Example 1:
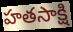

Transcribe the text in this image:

హతసాక్షి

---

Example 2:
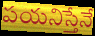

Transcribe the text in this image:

పయనిస్తేనే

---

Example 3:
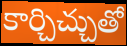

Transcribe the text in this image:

కార్చిచ్చుతో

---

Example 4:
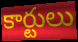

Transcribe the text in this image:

కార్టులు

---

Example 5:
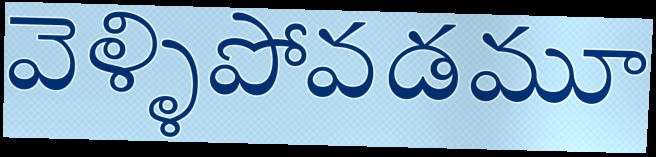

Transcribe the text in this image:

వెళ్ళిపోవడమూ